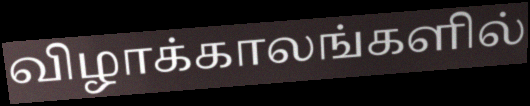
விழாக்காலங்களில்